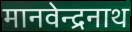
मानवेन्द्रनाथ